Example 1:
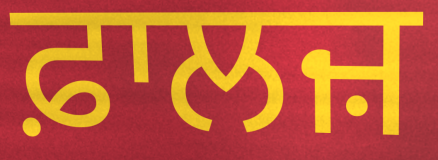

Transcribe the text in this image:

ਫ਼ਾਲਜ਼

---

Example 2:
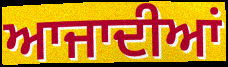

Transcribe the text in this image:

ਆਜਾਦੀਆਂ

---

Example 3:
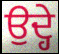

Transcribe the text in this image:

ਉਦ੍ਹੇ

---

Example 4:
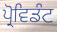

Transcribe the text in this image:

ਪ੍ਰੋਵਿਡੰਟ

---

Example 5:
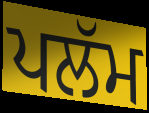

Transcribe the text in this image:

ਪਲੱਮ